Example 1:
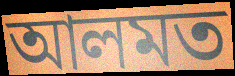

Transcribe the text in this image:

আলমত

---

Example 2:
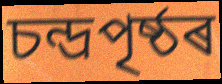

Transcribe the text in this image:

চন্দ্ৰপৃষ্ঠৰ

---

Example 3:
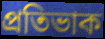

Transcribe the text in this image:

প্ৰতিভাক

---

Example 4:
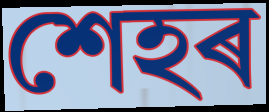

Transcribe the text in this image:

শেহৰ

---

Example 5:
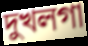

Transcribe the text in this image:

দুখলগা